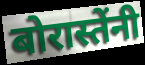
बोरास्तेंनी